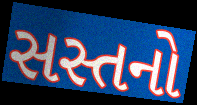
સસ્તનો